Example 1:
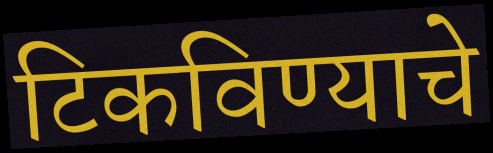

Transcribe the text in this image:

टिकविण्याचे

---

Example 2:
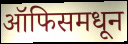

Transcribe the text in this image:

ऑफिसमधून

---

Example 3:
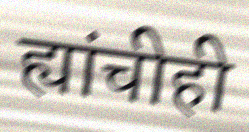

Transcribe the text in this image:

ह्यांचीही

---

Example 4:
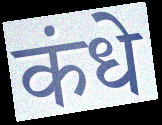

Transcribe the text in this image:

कंधे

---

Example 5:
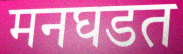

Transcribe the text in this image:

मनघडत